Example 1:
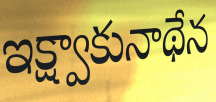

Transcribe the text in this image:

ఇక్ష్వాకునాథేన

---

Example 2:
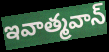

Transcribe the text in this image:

ఇవాత్మవాన్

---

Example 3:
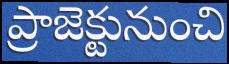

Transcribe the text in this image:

ప్రాజెక్టునుంచి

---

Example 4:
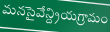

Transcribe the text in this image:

మనసైవేన్ద్రియగ్రామం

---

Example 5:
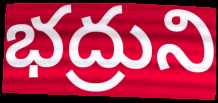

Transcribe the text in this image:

భద్రుని